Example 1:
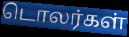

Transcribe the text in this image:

டொலர்கள்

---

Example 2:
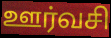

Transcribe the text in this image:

ஊர்வசி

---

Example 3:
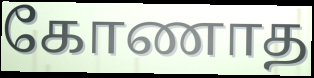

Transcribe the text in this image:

கோணாத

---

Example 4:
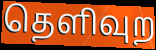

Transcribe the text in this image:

தெளிவுற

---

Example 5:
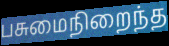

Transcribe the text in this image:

பசுமைநிறைந்த